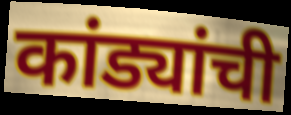
कांड्यांची